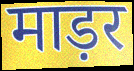
माड़र